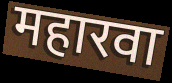
महारवा